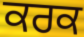
ਕਰਕ